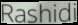
Rashidi